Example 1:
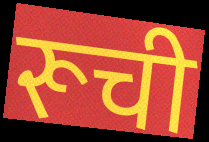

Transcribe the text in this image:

रूची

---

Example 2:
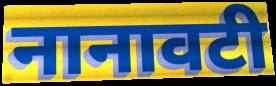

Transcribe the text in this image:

नानावटी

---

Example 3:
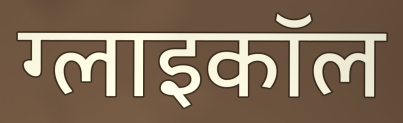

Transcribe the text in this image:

ग्लाइकॉल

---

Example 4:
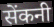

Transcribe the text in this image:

सेंकनी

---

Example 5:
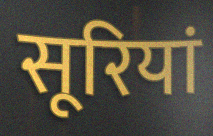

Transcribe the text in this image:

सूरियां